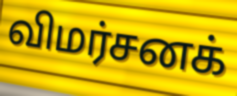
விமர்சனக்